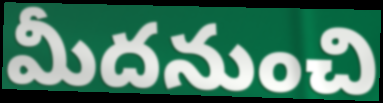
మీదనుంచి